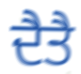
ਦੈਤੈ